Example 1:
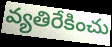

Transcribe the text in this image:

వ్యతిరేకించు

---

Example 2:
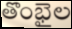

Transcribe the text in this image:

తొంభైల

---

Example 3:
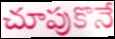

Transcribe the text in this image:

చూపుకొనే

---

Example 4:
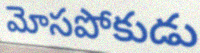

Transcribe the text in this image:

మోసపోకుడు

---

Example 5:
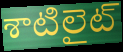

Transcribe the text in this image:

శాటిలైట్